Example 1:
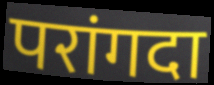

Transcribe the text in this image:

परांगदा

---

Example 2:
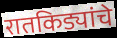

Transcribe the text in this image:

रातकिड्यांचे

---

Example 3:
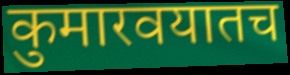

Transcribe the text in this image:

कुमारवयातच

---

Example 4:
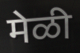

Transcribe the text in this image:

मेळी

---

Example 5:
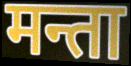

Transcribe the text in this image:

मन्ता